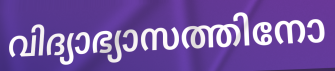
വിദ്യാഭ്യാസത്തിനോ